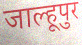
जाल्हूपुर